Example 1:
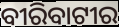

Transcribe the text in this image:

ବୀରିବାଟୀର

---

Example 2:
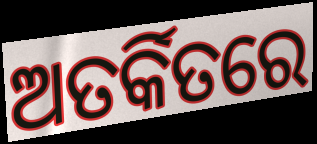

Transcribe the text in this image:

ଅତର୍କିତରେ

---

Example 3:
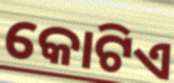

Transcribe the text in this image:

କୋଟିଏ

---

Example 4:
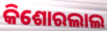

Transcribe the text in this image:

କିଶୋରଲାଲ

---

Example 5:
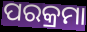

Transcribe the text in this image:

ପରକ୍ରମା